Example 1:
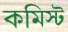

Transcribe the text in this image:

কমিস্ট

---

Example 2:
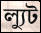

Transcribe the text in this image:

ল্যুট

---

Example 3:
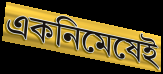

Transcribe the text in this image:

একনিমেষেই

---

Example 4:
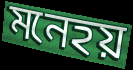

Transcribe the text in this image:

মনেহয়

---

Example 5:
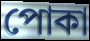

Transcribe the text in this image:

পোকা